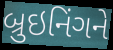
બ્રુઇનિંગને